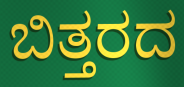
ಬಿತ್ತರದ